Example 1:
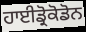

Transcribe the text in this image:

ਹਾਈਡ੍ਰੋਕੋਡੋਨ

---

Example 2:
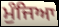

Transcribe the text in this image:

ਮੁੰਜਿਆ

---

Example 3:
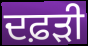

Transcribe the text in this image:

ਦਫ਼ੜੀ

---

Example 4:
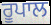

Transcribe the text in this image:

ਰੂਪਾਲ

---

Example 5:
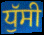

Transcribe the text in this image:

ਧੁੱਸੀ